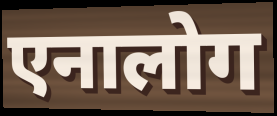
एनालोग